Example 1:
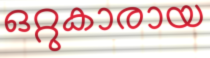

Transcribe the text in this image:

ഒറ്റുകാരായ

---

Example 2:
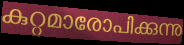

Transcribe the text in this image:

കുറ്റമാരോപിക്കുന്നു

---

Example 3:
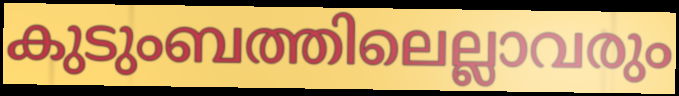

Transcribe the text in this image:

കുടുംബത്തിലെല്ലാവരും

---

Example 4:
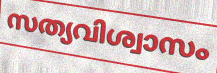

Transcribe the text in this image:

സത്യവിശ്വാസം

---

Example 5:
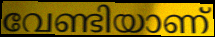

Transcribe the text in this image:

വേണ്ടിയാണ്